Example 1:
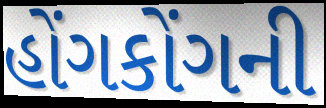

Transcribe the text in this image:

હોંગકોંગની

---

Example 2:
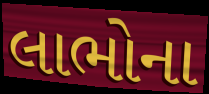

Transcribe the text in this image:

લાભોના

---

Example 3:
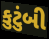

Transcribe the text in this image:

કુટુંબી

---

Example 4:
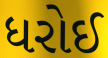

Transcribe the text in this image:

ધરોઈ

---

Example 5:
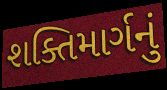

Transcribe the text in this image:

શક્તિમાર્ગનું